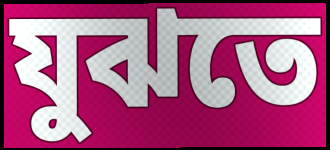
যুঝতে